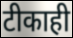
टीकाही